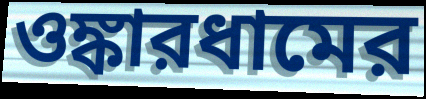
ওঙ্কারধামের